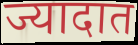
ज्यादात